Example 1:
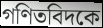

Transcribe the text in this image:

গণিতবিদকে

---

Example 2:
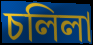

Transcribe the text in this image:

চলিলা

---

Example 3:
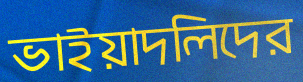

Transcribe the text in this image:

ভাইয়াদলিদের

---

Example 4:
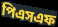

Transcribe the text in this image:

পিএসএফ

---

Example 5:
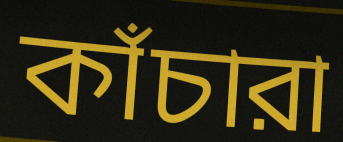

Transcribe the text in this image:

কাঁচারা